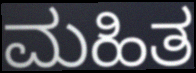
ಮಹಿತ